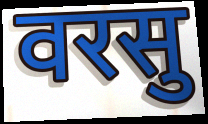
वरसु